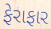
ફેરાફાર